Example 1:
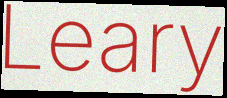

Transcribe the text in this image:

Leary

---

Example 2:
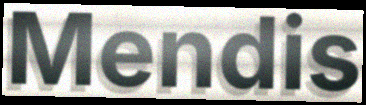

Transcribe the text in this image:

Mendis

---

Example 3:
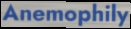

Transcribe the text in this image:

Anemophily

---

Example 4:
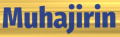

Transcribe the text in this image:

Muhajirin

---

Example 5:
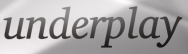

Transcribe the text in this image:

underplay